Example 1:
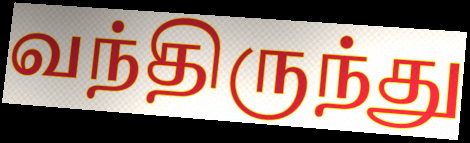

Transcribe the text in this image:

வந்திருந்து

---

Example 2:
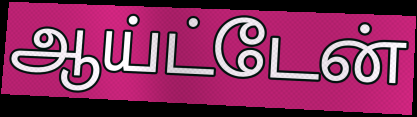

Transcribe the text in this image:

ஆய்ட்டேன்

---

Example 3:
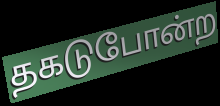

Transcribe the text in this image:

தகடுபோன்ற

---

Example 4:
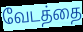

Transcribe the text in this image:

வேடத்தை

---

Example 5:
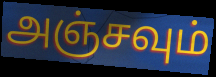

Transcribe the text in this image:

அஞ்சவும்